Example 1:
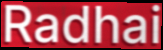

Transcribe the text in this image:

Radhai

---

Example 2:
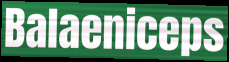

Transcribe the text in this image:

Balaeniceps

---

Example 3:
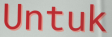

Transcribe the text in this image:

Untuk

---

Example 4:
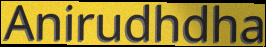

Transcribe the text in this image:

Anirudhdha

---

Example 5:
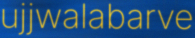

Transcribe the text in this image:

ujjwalabarve